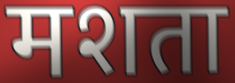
मशता